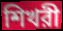
শিখরী